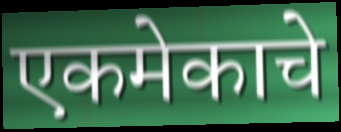
एकमेकाचे